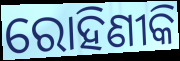
ରୋହିଣୀକି